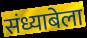
संध्याबेला